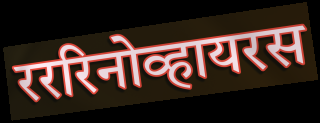
रररिनोव्हायरस